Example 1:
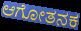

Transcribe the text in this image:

ಆಗೋತನಕ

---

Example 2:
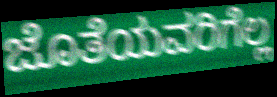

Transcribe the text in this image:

ಜೊತೆಯವರಿಗೆಲ್ಲ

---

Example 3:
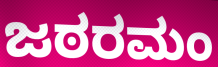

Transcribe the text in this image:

ಜಠರಮಂ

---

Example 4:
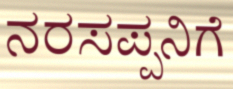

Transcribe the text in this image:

ನರಸಪ್ಪನಿಗೆ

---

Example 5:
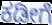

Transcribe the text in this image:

ಕಡೀಗೆ